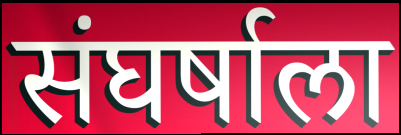
संघर्षाला